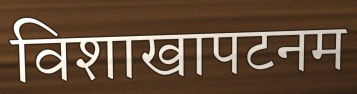
विशाखापटनम